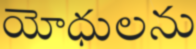
యోధులను